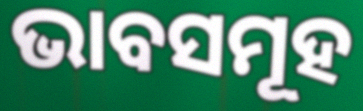
ଭାବସମୂହ